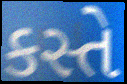
કસ્તે